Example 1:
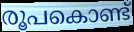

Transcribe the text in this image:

രൂപകൊണ്ട്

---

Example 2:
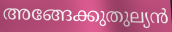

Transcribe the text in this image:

അങ്ങേക്കുതുല്യൻ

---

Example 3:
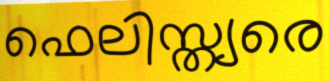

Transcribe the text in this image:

ഫെലിസ്ത്യരെ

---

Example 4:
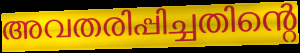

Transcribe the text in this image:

അവതരിപ്പിച്ചതിന്റെ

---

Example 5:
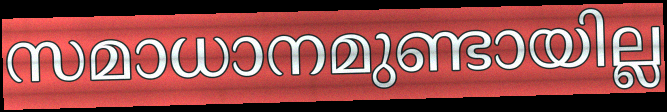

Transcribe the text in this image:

സമാധാനമുണ്ടായില്ല